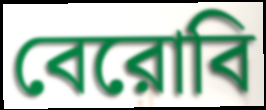
বেরোবি